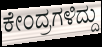
ಕೇಂದ್ರಗಳಿದ್ದು